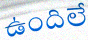
ఉందిలే